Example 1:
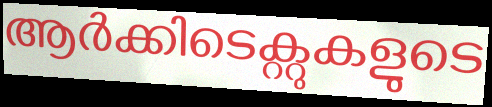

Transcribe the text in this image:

ആർക്കിടെക്റ്റുകളുടെ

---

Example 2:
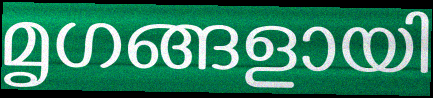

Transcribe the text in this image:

മൃഗങ്ങളായി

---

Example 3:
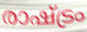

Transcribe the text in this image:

രാഷ്ട്രം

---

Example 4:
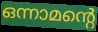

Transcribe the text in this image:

ഒന്നാമന്റെ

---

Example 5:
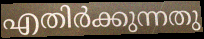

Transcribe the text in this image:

എതിർക്കുന്നതു